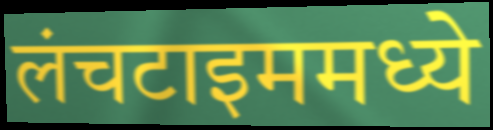
लंचटाइममध्ये